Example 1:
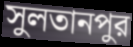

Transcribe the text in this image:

সুলতানপুর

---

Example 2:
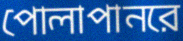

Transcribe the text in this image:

পোলাপানরে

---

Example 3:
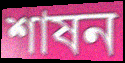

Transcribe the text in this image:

শাষন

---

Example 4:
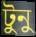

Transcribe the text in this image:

টুনু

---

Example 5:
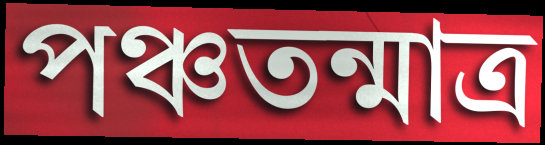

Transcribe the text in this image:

পঞ্চতন্মাত্র